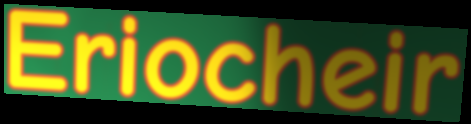
Eriocheir